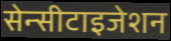
सेन्सीटाइजेशन